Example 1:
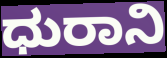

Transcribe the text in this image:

ಧುರಾನಿ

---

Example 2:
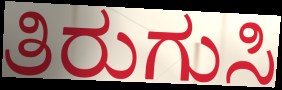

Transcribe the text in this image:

ತಿರುಗುಸಿ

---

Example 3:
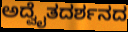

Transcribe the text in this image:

ಅದ್ವೈತದರ್ಶನದ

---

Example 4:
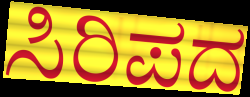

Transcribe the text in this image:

ಸಿರಿಪದ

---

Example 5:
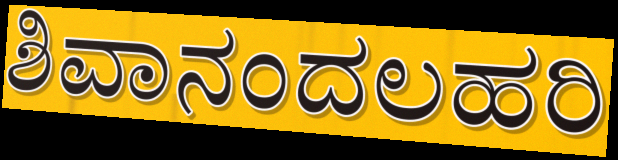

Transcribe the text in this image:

ಶಿವಾನಂದಲಹರಿ